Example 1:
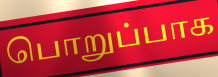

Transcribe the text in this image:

பொறுப்பாக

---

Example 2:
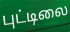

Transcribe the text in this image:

புட்டிலை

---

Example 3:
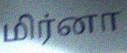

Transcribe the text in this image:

மிர்னா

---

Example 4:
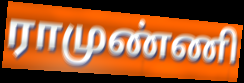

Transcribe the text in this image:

ராமுண்ணி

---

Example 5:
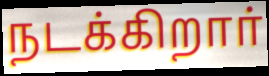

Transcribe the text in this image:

நடக்கிறார்